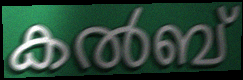
കൽബ്